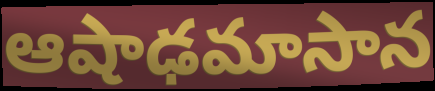
ఆషాఢమాసాన